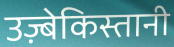
उज़्बेकिस्तानी